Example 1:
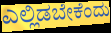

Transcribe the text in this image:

ಎಲ್ಲಿಡಬೇಕೆಂದು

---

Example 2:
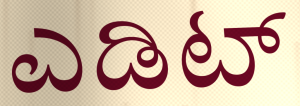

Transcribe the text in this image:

ಎಡಿಟ್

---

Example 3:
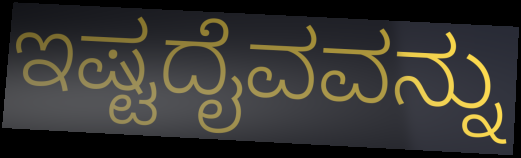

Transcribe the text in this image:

ಇಷ್ಟದೈವವನ್ನು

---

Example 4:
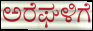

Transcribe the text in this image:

ಅರೆಘಳಿಗೆ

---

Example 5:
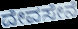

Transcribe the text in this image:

ದೇವಸೇನೆ